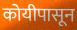
कोयीपासून